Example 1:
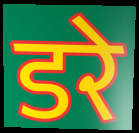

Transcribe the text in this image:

डरे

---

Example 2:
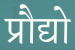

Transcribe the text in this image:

प्रौद्यो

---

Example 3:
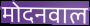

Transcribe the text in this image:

मोदनवाल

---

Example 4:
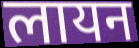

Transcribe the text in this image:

लायन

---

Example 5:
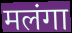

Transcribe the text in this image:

मलंगा